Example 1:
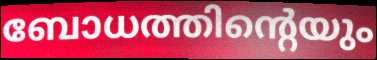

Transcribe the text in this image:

ബോധത്തിന്റെയും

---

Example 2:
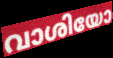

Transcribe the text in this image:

വാശിയോ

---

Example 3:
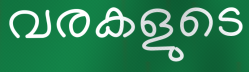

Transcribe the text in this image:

വരകളുടെ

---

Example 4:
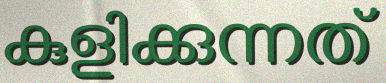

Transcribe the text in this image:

കുളിക്കുന്നത്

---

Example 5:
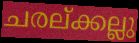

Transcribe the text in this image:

ചരല്ക്കല്ലു